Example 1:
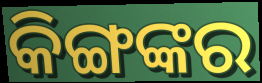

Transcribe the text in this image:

କିଙ୍ଗଙ୍କର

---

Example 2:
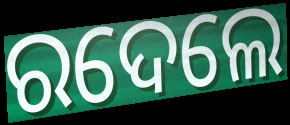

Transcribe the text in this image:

ରଦେଲେ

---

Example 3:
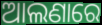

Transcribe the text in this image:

ଆଲଣାରେ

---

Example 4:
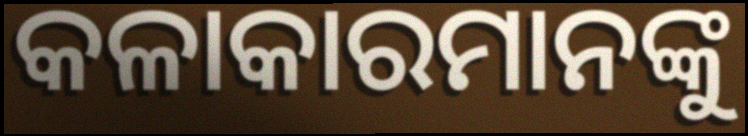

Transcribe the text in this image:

କଳାକାରମାନଙ୍କୁ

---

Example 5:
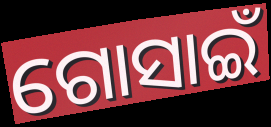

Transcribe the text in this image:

ଗୋସାଇଁ